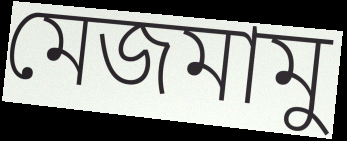
মেজমামু